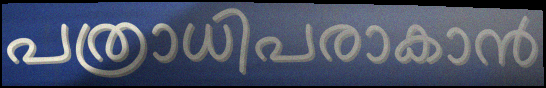
പത്രാധിപരാകാൻ